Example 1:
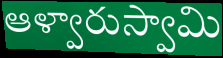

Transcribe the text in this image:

ఆళ్వారుస్వామి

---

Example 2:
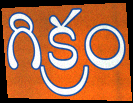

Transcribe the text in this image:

గిక్రం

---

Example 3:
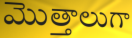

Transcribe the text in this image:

మొత్తాలుగా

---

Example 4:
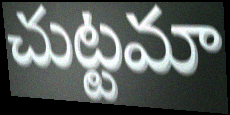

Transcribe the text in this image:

చుట్టమా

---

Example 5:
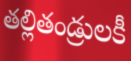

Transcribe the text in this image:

తల్లితండ్రులకీ